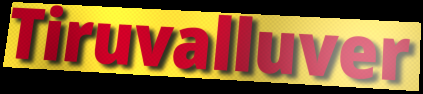
Tiruvalluver